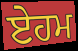
ਏਹਮ